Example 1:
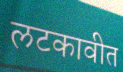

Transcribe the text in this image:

लटकावीत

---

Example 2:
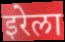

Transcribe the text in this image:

इरेला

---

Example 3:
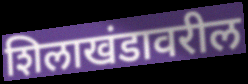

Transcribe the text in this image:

शिलाखंडावरील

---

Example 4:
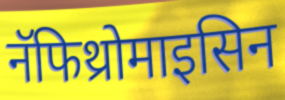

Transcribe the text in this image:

नॅफिथ्रोमाइसिन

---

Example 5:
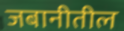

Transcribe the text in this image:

जबानीतील